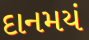
દાનમયં